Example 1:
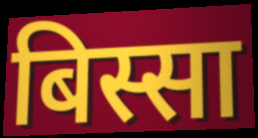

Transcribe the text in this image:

बिस्सा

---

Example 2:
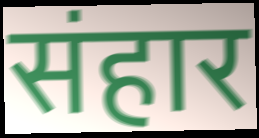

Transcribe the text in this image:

संहार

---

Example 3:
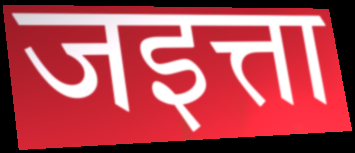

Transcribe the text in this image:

जइत्ता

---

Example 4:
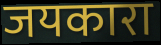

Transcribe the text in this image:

जयकारा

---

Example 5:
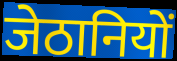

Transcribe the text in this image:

जेठानियों